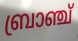
ബ്രാഞ്ച്